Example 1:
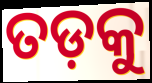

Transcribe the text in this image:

ତଡ଼କୁ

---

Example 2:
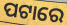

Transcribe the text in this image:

ପଟାରେ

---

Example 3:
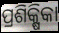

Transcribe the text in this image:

ପ୍ରଶିକ୍ଷିକା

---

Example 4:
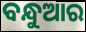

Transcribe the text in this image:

ବନ୍ଧୁଆର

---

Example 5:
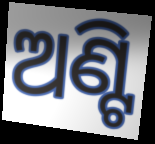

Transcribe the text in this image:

ଅଣ୍ଟି